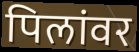
पिलांवर